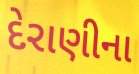
દેરાણીના